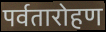
पर्वतारोहण